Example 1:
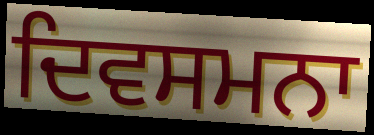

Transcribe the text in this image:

ਦਿਵਸਮਨਾ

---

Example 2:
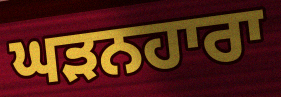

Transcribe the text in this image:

ਘੜਨਹਾਰਾ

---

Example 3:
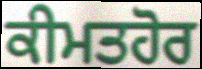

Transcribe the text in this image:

ਕੀਮਤਹੋਰ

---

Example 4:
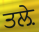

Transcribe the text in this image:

ਤਲ਼ੇ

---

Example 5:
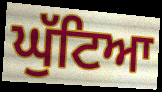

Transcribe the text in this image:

ਘੁੱਟਿਆ